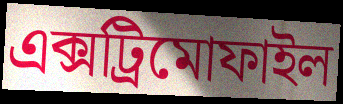
এক্সট্রিমোফাইল